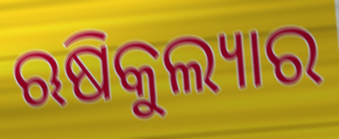
ଋଷିକୁଲ୍ୟାର